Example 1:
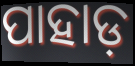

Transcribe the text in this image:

ପାହାଡ଼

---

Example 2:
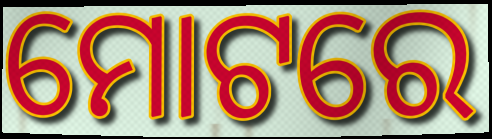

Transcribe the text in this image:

ମୋଟରେ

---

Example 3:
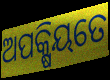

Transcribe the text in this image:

ଅପକ୍ଷିୟତେ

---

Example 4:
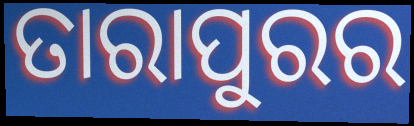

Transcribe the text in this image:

ତାରାପୁରର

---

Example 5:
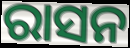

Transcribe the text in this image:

ରାସନ